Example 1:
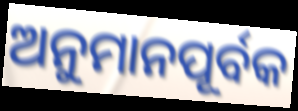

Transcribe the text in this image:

ଅନୁମାନପୂର୍ବକ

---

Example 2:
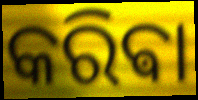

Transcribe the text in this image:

କରିଵା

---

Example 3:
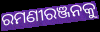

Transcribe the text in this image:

ରମଣୀରଞ୍ଜନକୁ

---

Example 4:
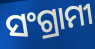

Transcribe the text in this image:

ସଂଗ୍ରାମୀ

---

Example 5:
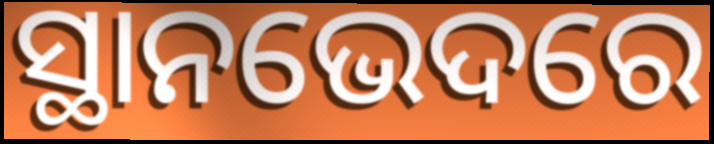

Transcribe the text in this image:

ସ୍ଥାନଭେଦରେ